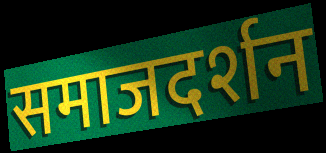
समाजदर्शन